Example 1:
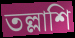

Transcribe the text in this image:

তল্লাশি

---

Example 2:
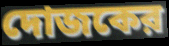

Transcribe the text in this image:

দোজকের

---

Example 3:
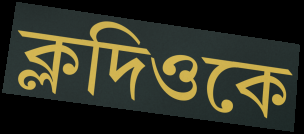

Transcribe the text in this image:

ক্লদিওকে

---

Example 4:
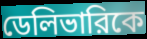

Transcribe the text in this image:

ডেলিভারিকে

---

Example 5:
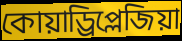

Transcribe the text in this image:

কোয়াড্রিপ্লেজিয়া